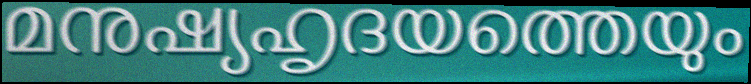
മനുഷ്യഹൃദയത്തെയും